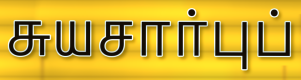
சுயசார்புப்